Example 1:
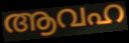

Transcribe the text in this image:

ആവഹ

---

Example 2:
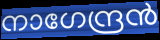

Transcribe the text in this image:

നാഗേന്ദ്രൻ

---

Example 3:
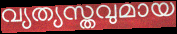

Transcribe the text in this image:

വ്യത്യസ്തവുമായ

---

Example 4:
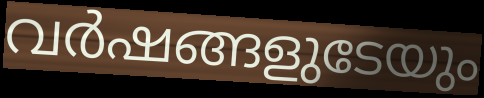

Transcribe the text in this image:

വർഷങ്ങളുടേയും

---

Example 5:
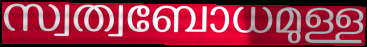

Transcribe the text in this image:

സ്വത്വബോധമുള്ള